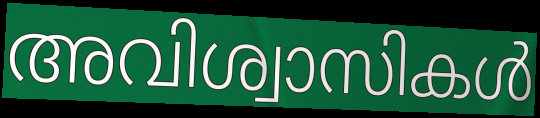
അവിശ്വാസികൾ